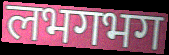
लभगभग